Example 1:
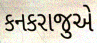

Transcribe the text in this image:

કનકરાજુએ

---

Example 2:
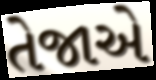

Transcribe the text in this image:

તેજાએ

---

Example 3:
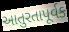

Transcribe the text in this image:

આતુરતાપૂર્વક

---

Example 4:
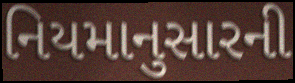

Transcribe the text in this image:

નિયમાનુસારની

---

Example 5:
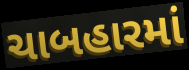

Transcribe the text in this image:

ચાબહારમાં